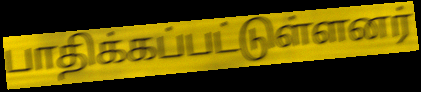
பாதிக்கப்பட்டுள்ளனர்